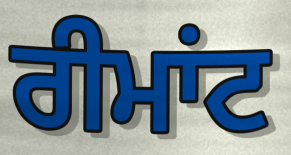
ਰੀਮਾਂਟ